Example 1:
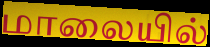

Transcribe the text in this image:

மாலையில்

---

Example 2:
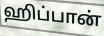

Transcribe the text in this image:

ஹிப்பான்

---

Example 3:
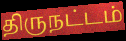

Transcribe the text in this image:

திருநட்டம்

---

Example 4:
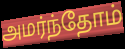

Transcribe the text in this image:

அமர்ந்தோம்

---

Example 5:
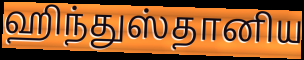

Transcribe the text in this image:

ஹிந்துஸ்தானிய